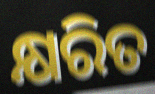
କ୍ଷରିତ